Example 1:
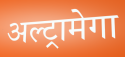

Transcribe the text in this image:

अल्ट्रामेगा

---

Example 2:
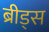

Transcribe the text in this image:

ब्रीड्स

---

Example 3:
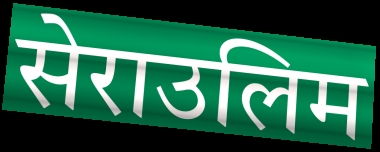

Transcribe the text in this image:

सेराउलिम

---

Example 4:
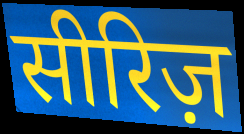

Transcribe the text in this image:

सीरिज़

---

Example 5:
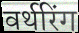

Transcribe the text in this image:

वर्थरिंग